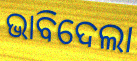
ଭାବିଦେଲା